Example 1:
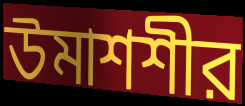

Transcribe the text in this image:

উমাশশীর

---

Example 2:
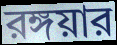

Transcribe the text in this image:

রঙ্গয়ার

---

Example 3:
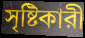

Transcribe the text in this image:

সৃষ্টিকারী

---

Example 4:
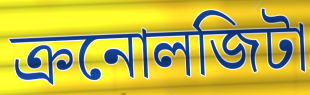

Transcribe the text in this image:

ক্রনোলজিটা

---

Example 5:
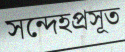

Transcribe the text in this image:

সন্দেহপ্রসূত